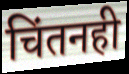
चिंतनही